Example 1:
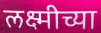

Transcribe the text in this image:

लक्ष्मीच्या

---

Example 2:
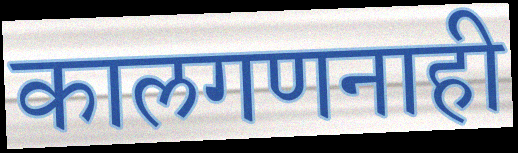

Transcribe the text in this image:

कालगणनाही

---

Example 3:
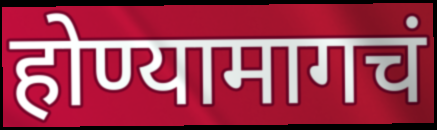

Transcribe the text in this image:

होण्यामागचं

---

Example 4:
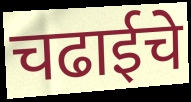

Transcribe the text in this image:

चढाईचे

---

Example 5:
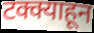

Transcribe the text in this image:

टक्क्याहून